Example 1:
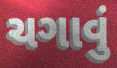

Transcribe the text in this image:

ચગાવું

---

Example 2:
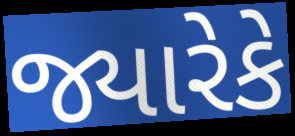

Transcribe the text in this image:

જ્યારેકે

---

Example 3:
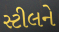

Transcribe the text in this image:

સ્ટીલને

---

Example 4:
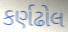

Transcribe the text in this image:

કર્ણઢોલ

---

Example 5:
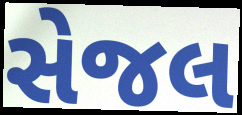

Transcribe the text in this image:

સેજલ